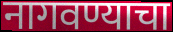
नागवण्याचा